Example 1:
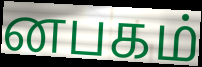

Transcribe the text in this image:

னபகம்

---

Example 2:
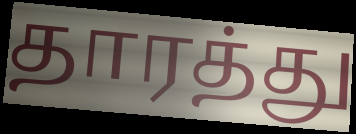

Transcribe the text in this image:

தாரத்து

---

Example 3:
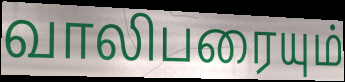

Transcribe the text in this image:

வாலிபரையும்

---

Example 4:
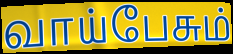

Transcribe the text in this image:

வாய்பேசும்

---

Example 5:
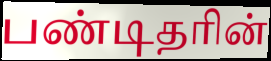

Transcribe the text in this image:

பண்டிதரின்